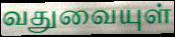
வதுவையுள்